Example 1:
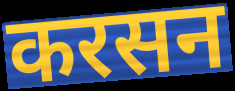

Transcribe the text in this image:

करसन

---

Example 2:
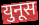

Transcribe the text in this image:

युनूस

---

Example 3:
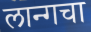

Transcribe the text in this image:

लान्गचा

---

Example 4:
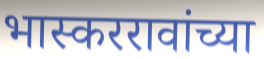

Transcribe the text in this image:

भास्कररावांच्या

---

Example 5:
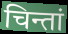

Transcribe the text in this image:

चिन्तां